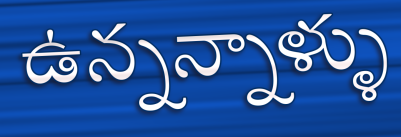
ఉన్నన్నాళ్ళు